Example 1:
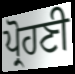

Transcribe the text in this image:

ਪ੍ਰੋਹਣੀ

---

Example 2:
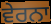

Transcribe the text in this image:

ਵੇਰਨਾ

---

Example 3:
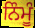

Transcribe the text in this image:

ਨਿੰਮੂੰ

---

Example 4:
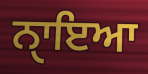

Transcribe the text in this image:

ਨੑਾਇਆ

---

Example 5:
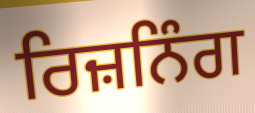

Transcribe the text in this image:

ਰਿਜ਼ਨਿੰਗ